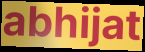
abhijat